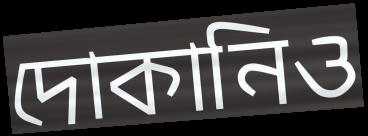
দোকানিও